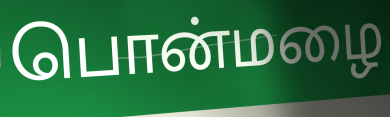
பொன்மழை